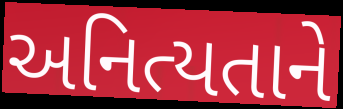
અનિત્યતાને